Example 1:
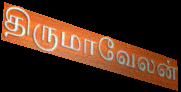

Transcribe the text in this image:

திருமாவேலன்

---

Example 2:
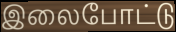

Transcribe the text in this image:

இலைபோட்டு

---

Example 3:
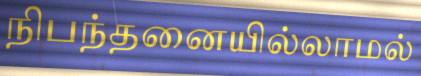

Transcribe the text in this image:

நிபந்தனையில்லாமல்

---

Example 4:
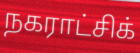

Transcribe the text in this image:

நகராட்சிக்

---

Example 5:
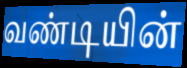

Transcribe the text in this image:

வண்டியின்